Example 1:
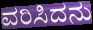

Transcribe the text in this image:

ವರಿಸಿದನು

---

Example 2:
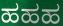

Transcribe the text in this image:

ಹಹಹ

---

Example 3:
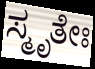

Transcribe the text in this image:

ಸ್ಮೃತೇಃ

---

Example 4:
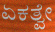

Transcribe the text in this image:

ಏಕತ್ವೇ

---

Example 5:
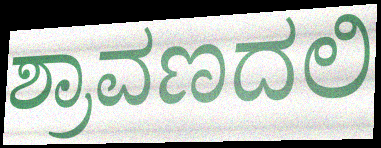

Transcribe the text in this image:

ಶ್ರಾವಣದಲಿ